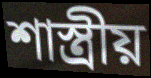
শাস্ত্রীয়